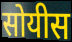
सोयीस